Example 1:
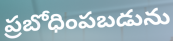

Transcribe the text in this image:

ప్రబోధింపబడును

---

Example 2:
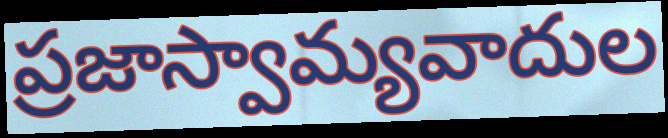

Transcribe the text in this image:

ప్రజాస్వామ్యవాదుల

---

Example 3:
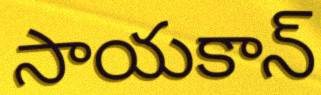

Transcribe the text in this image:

సాయకాన్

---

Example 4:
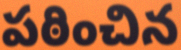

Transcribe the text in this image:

పఠించిన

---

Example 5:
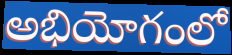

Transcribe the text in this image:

అభియోగంలో